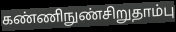
கண்ணிநுண்சிறுதாம்பு